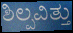
ಶಿಲ್ಪವಿತ್ತು